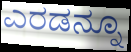
ಎರಡನ್ನೂ